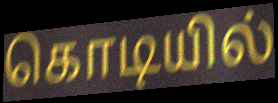
கொடியில்